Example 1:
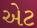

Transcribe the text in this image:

એટ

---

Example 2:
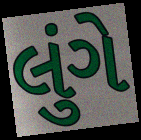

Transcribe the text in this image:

લુંગે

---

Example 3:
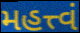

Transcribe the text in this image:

મહત્ત્વં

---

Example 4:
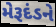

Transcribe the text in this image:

મેરૂદંડને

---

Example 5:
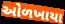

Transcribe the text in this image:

ઓળખાયા